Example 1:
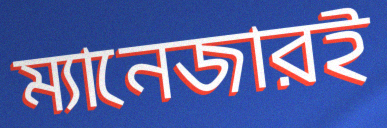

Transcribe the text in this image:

ম্যানেজারই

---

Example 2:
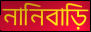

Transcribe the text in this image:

নানিবাড়ি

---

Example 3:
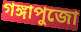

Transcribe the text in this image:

গঙ্গাপুজো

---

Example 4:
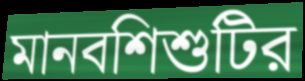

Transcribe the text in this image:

মানবশিশুটির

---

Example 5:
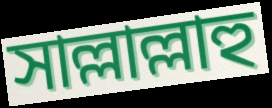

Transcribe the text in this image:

সাল্লাল্লাহু